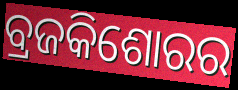
ବ୍ରଜକିଶୋରର